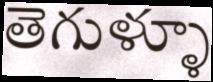
తెగుళ్ళూ